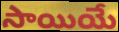
సాయియే